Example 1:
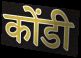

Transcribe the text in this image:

कोंडी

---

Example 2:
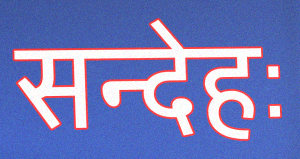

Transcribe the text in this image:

सन्देहः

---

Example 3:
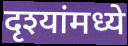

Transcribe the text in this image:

दृश्यांमध्ये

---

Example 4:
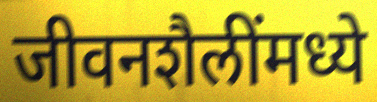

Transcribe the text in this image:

जीवनशैलींमध्ये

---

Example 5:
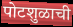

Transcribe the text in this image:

पोटशुळाची